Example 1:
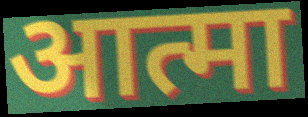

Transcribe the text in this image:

आत्मा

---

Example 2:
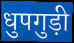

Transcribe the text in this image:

धुपगुड़ी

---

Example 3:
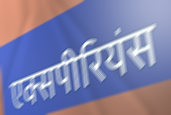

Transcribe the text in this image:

एक्सपीरियंस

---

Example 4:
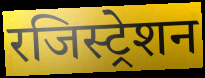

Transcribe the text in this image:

रजिस्‍ट्रेशन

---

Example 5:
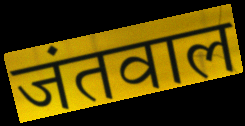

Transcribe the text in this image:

जंतवाल